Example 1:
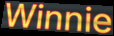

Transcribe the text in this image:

Winnie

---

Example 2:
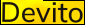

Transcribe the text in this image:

Devito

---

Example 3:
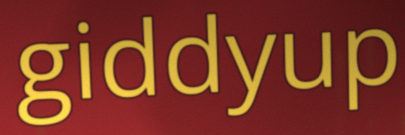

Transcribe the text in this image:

giddyup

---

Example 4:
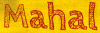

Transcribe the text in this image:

Mahal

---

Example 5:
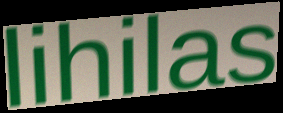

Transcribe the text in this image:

lihilas